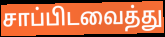
சாப்பிடவைத்து